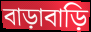
বাড়াবাড়ি